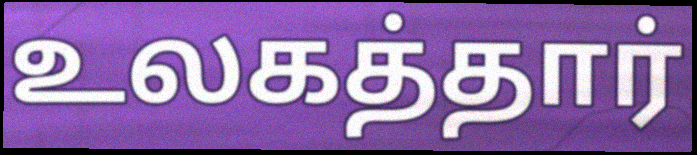
உலகத்தார்